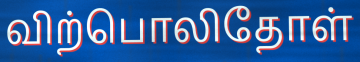
விற்பொலிதோள்